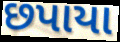
છપાયા